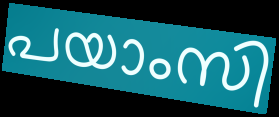
പയാംസി